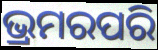
ଭ୍ରମରପରି